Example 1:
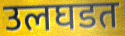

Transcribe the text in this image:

उलघडत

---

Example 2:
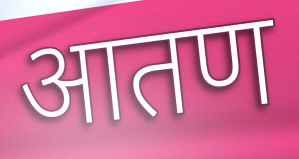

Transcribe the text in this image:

आतण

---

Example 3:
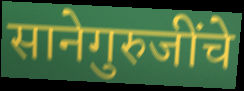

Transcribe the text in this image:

सानेगुरुजींचे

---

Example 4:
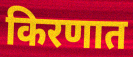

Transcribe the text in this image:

किरणात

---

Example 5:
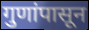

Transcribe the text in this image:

गुणांपासून